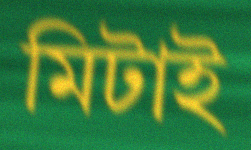
মিটাই